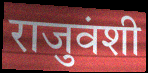
राजुवंशी